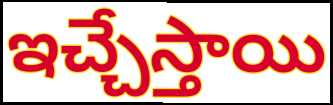
ఇచ్చేస్తాయి